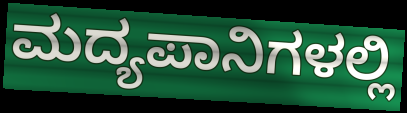
ಮದ್ಯಪಾನಿಗಳಲ್ಲಿ